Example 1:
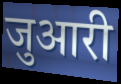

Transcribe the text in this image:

जुआरी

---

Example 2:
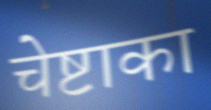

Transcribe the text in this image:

चेष्टाका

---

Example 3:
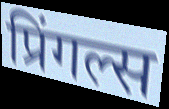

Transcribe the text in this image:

प्रिंगल्स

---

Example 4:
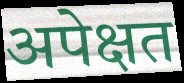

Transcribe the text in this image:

अपेक्षत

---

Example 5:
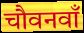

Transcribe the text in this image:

चौवनवाँ